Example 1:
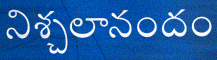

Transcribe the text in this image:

నిశ్చలానందం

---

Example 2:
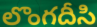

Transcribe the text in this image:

లొంగదీసి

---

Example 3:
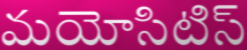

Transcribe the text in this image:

మయోసిటిస్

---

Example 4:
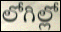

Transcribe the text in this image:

లోగిల్లో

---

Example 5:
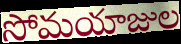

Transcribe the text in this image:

సోమయాజుల